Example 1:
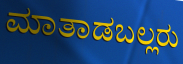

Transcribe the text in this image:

ಮಾತಾಡಬಲ್ಲರು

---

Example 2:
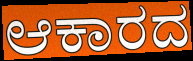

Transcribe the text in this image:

ಆಕಾರದ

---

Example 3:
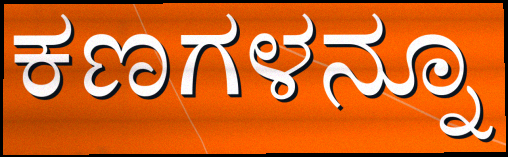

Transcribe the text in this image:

ಕಣಗಳನ್ನೂ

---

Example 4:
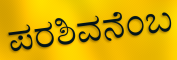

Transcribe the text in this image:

ಪರಶಿವನೆಂಬ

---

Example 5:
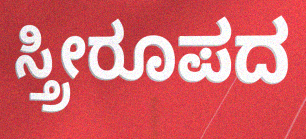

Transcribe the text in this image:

ಸ್ತ್ರೀರೂಪದ